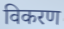
विकरण